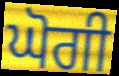
ਘੋਗੀ